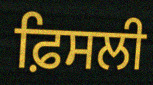
ਫ਼ਿਸਲੀ